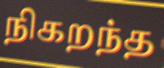
நிகறந்த